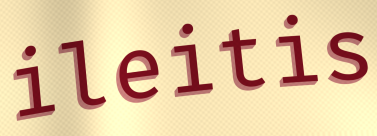
ileitis